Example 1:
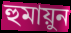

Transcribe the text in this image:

হুমায়ুন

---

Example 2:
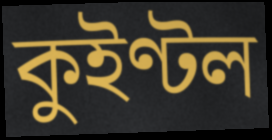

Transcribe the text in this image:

কুইণ্টল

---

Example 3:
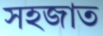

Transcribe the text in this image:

সহজাত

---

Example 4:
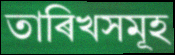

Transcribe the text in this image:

তাৰিখসমূহ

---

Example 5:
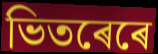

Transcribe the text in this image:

ভিতৰেৰে